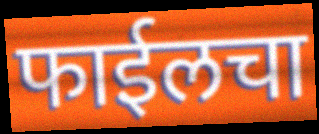
फाईलचा